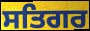
ਸਤਿਗਰ